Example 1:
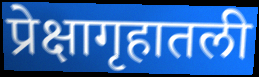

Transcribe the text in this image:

प्रेक्षागृहातली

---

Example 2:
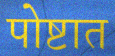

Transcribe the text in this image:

पोष्टात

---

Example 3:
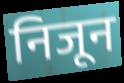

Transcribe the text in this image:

निजून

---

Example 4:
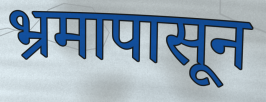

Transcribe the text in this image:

भ्रमापासून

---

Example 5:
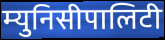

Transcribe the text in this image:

म्युनिसीपालिटी